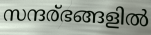
സന്ദര്ഭങ്ങളിൽ